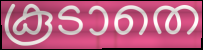
കൂടാതെ